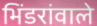
भिंडरांवाले